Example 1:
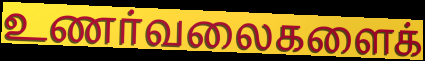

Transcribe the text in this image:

உணர்வலைகளைக்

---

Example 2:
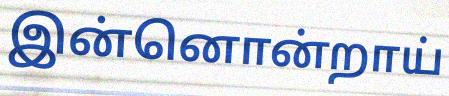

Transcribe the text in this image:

இன்னொன்றாய்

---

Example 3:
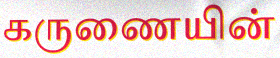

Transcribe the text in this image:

கருணையின்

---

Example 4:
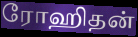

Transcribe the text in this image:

ரோஹிதன்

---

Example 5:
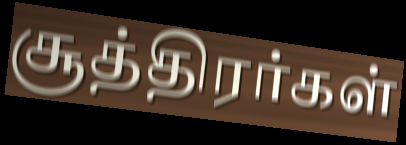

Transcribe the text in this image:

சூத்திரர்கள்